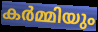
കർമ്മിയും